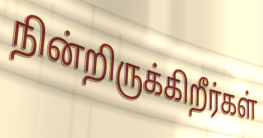
நின்றிருக்கிறீர்கள்